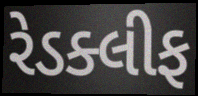
રેડક્લીફ